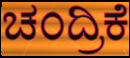
ಚಂದ್ರಿಕೆ